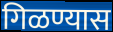
गिळण्यास